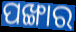
ପଙ୍ଖାର